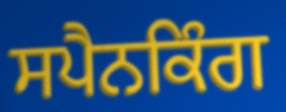
ਸਪੈਨਕਿੰਗ